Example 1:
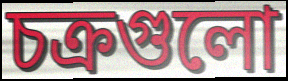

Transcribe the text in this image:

চক্রগুলো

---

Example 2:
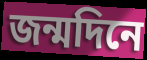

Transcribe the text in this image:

জন্মদিনে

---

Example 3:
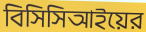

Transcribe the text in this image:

বিসিসিআইয়ের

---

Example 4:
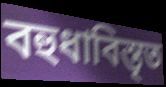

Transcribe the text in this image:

বহুধাবিস্তৃত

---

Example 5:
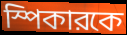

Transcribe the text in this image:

স্পিকারকে